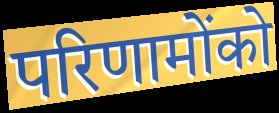
परिणामोंको